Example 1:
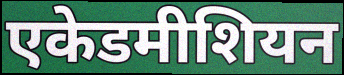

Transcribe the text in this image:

एकेडमीशियन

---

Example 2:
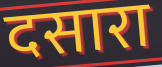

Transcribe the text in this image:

दसारा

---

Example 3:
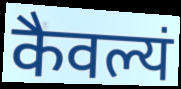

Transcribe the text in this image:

कैवल्यं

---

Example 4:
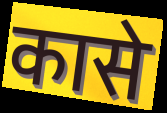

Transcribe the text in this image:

कासे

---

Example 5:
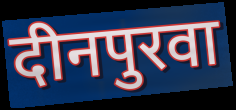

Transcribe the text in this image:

दीनपुरवा